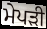
ਮੇਪੜੀ